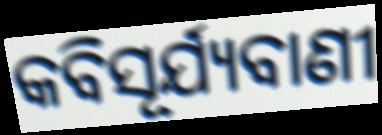
କବିସୂର୍ଯ୍ୟବାଣୀ